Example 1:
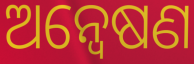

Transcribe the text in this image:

ଅନ୍ବେଷଣ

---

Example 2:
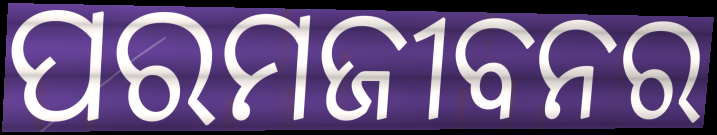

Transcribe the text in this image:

ପରମଜୀବନର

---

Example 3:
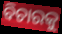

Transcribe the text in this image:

ବିଚାରକୁ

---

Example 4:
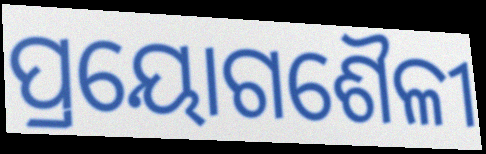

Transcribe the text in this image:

ପ୍ରୟୋଗଶୈଳୀ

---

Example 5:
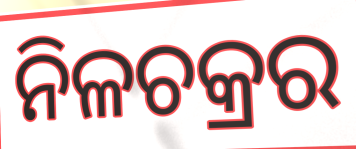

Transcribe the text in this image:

ନିଳଚକ୍ରର